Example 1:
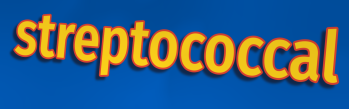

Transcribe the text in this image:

streptococcal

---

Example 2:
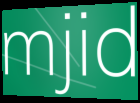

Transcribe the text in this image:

mjid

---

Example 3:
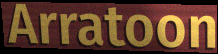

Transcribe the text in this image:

Arratoon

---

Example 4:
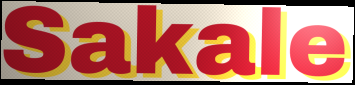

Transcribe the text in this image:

Sakale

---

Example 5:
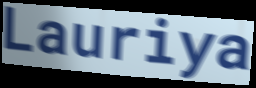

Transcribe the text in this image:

Lauriya